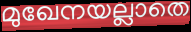
മുഖേനയല്ലാതെ